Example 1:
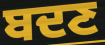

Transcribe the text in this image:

ਬਦਣ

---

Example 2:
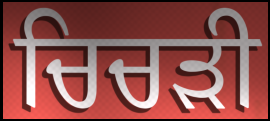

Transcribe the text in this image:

ਚਿਚੜੀ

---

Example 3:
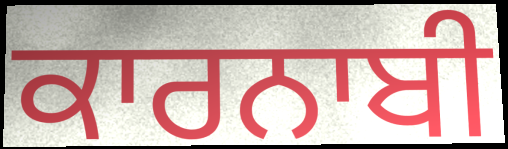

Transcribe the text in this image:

ਕਾਰਨਾਬੀ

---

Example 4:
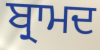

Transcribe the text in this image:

ਬ੍ਰਾਮਦ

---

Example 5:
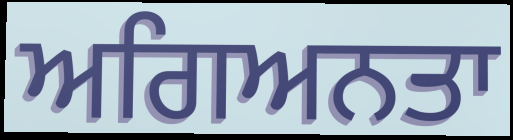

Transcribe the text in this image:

ਅਗਿਅਨਤਾ